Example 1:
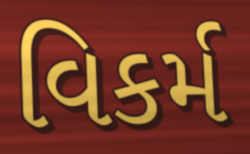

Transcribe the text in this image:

વિકર્મ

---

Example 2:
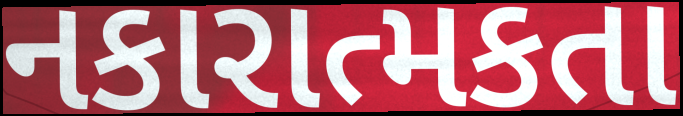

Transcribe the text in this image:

નકારાત્મકતા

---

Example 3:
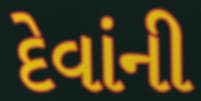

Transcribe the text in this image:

દેવાંની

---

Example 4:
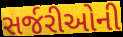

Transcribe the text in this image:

સર્જરીઓની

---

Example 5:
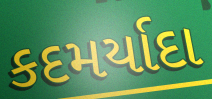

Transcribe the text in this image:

કદમર્યાદા